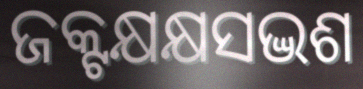
ଜକ୍ଟକ୍ଷକ୍ଷସଦ୍ଭଶ